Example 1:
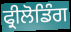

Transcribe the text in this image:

ਫ੍ਰੀਲੋਡਿੰਗ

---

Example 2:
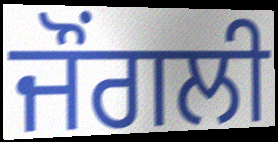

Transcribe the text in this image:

ਜੌਂਗਲੀ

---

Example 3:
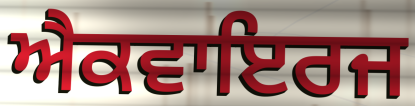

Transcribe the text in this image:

ਐਕਵਾਇਰਜ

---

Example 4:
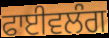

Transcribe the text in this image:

ਫਾਈਵਲੰਗ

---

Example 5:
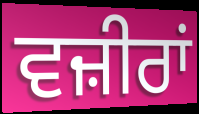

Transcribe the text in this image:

ਵਜ਼ੀਰਾਂ